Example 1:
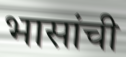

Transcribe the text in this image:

भासांची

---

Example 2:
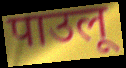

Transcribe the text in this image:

पाउलू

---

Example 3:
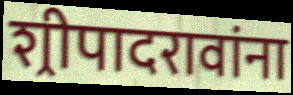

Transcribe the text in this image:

श्रीपादरावांना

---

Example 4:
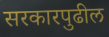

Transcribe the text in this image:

सरकारपुढील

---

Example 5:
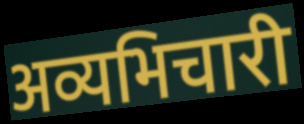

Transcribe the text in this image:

अव्यभिचारी